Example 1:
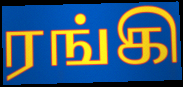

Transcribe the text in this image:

ரங்கி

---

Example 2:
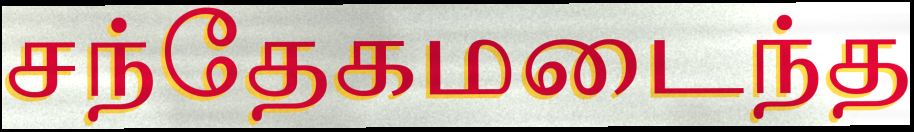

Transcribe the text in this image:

சந்தேகமடைந்த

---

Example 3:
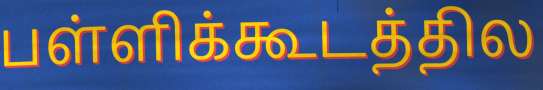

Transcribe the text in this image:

பள்ளிக்கூடத்தில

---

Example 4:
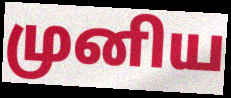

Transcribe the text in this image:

முனிய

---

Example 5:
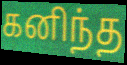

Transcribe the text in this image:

கனிந்த